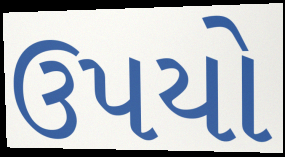
ઉપયો